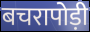
बचरापोड़ी